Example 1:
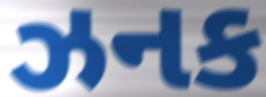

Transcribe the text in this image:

ઝનક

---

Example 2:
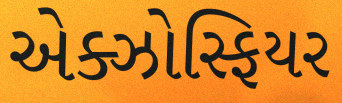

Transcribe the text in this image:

એક્ઝોસ્ફિયર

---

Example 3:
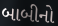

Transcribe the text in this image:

બાબીનો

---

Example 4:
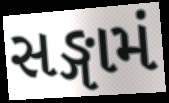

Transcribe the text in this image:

સઙ્ગામં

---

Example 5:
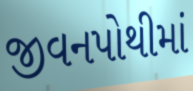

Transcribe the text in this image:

જીવનપોથીમાં